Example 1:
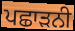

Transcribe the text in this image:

ਪਛਾੜਨੀ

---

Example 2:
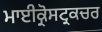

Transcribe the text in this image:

ਮਾਈਕ੍ਰੋਸਟ੍ਰਕਚਰ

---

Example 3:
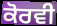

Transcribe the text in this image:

ਕੋਰਵੀ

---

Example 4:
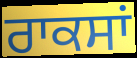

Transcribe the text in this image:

ਰਾਕਸਾਂ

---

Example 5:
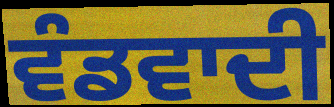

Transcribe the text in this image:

ਵੰਡਵਾਦੀ